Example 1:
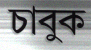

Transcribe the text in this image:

চাবুক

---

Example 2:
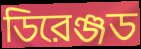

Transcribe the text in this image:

ডিরেঞ্জড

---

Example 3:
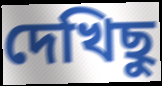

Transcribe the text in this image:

দেখিছু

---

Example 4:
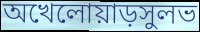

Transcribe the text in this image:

অখেলোয়াড়সুলভ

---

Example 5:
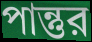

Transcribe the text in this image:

পান্তুর